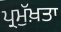
ਪ੍ਰਮੁੱਖ਼ਤਾ